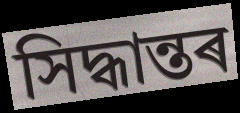
সিদ্ধান্তৰ